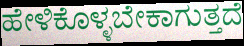
ಹೇಳಿಕೊಳ್ಳಬೇಕಾಗುತ್ತದೆ